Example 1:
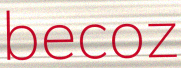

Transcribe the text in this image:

becoz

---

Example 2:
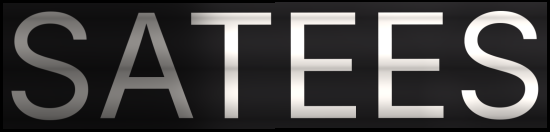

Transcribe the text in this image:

SATEES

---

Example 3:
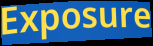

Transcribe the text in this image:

Exposure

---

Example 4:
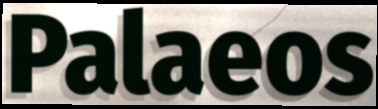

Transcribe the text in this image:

Palaeos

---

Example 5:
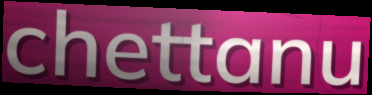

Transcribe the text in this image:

chettanu